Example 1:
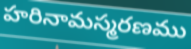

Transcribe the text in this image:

హరినామస్మరణము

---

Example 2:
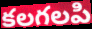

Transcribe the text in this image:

కలగలపి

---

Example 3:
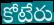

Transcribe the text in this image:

కోటేరు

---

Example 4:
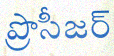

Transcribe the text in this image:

ప్రొసీజర్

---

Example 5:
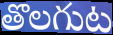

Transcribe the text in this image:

తొలగుట